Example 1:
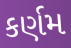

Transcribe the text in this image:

કર્ણમ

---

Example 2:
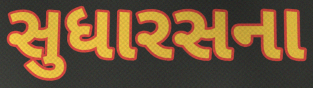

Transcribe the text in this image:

સુધારસના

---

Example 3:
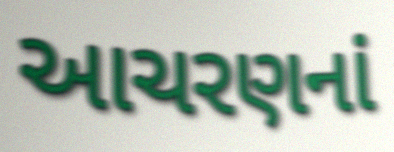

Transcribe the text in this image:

આચરણનાં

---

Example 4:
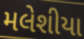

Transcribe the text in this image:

મલેશીયા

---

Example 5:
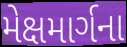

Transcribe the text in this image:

મેક્ષમાર્ગના